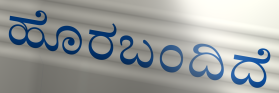
ಹೊರಬಂದಿದೆ